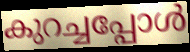
കുറച്ചപ്പോൾ